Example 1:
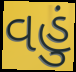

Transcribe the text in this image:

વહું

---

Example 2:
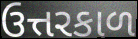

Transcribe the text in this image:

ઉત્તરકાળ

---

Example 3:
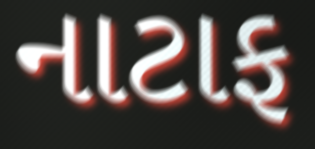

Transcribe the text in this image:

નાટાફ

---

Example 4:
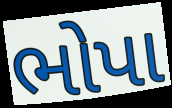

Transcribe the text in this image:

ભોપા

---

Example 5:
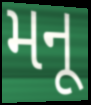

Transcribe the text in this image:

મનૂ